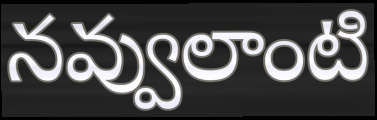
నవ్వులాంటి